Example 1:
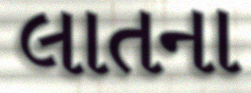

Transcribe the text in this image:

લાતના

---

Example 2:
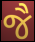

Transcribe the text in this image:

જૈ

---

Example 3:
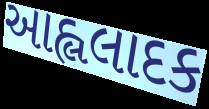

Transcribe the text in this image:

આહ્લલાદક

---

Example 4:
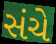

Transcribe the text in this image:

સંચે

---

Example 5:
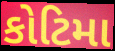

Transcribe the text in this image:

કોટિમા